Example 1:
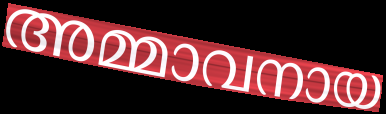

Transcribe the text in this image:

അമ്മാവനായ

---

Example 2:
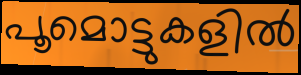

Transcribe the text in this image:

പൂമൊട്ടുകളിൽ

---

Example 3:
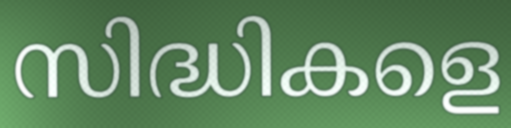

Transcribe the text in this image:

സിദ്ധികളെ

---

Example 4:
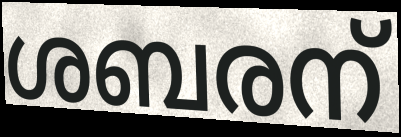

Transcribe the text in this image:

ശബരന്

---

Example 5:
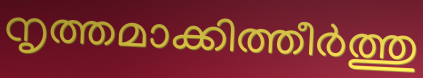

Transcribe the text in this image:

നൃത്തമാക്കിത്തീർത്തു